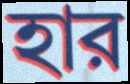
হার